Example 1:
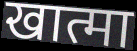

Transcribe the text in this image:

खात्मा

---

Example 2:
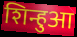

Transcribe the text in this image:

शिन्हुआ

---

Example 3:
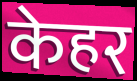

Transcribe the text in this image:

केहर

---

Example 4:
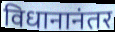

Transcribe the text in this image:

विधानानंतर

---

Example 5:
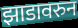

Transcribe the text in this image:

झाडावरुन